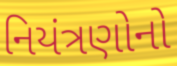
નિયંત્રણોનો